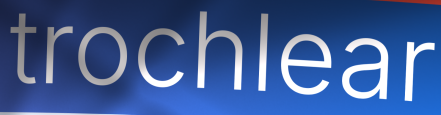
trochlear